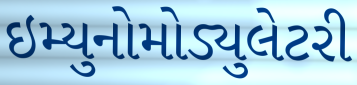
ઇમ્યુનોમોડ્યુલેટરી